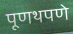
पूणथपणे